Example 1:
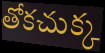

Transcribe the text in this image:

తోకచుక్క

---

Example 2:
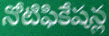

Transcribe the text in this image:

నోటిఫికేషన్ల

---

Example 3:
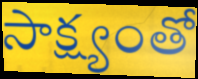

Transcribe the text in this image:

సాక్ష్యంతో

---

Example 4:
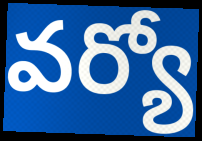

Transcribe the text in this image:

వర్యో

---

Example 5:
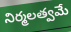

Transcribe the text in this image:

నిర్మలత్వమే